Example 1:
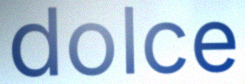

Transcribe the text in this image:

dolce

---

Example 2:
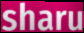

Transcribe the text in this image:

sharu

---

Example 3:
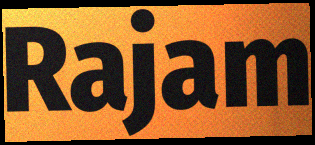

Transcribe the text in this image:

Rajam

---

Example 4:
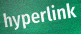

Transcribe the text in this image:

hyperlink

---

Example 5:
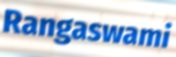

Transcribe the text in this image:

Rangaswami